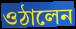
ওঠালেন